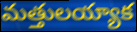
మత్తులయ్యాక